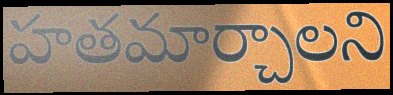
హతమార్చాలని